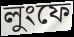
লুংফে